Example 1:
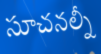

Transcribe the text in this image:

సూచనల్నీ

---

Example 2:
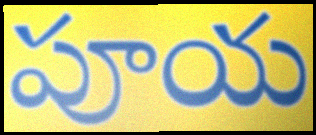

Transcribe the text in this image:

పూయ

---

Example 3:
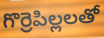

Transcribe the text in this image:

గొర్రెపిల్లలతో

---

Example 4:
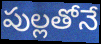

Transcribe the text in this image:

పుల్లతోనే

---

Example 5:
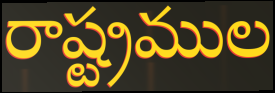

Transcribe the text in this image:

రాష్ట్రముల